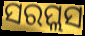
ସରପ୍ଲସ